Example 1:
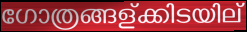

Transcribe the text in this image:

ഗോത്രങ്ങള്ക്കിടയില്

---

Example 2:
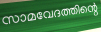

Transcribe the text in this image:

സാമവേദത്തിന്റെ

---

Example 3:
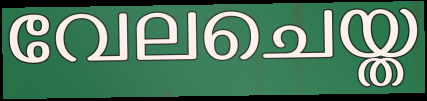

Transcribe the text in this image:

വേലചെയ്ത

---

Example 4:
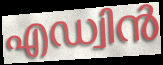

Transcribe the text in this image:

എഡ്വിൻ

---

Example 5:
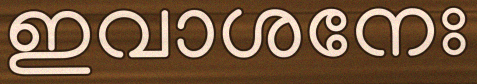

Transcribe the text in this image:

ഇവാശനേഃ